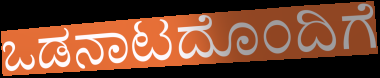
ಒಡನಾಟದೊಂದಿಗೆ